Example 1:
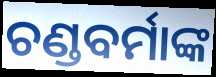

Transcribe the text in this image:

ଚଣ୍ଡବର୍ମାଙ୍କ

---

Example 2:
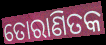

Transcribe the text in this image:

ତୋରାଣିତକ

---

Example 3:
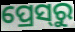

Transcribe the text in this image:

ପ୍ରେସ୍‍ରୁ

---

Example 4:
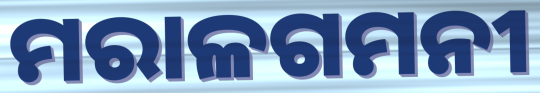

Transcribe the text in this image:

ମରାଳଗମନୀ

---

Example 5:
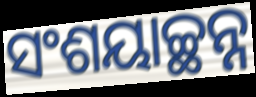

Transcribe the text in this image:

ସଂଶୟାଚ୍ଛନ୍ନ